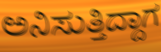
ಅನಿಸುತ್ತಿದ್ದಾಗ